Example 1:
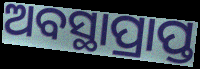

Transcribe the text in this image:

ଅବସ୍ଥାପ୍ରାପ୍ତ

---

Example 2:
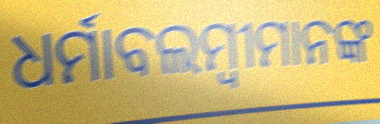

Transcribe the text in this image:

ଧର୍ମାବଲମ୍ବୀମାନଙ୍କ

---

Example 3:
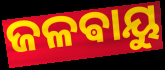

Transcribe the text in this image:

ଜଳଵାୟୁ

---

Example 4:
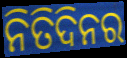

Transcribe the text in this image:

ନିତିଦିନର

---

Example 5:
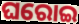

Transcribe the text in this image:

ଘରୋଇ